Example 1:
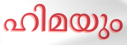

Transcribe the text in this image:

ഹിമയും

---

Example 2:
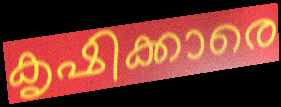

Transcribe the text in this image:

കൃഷിക്കാരെ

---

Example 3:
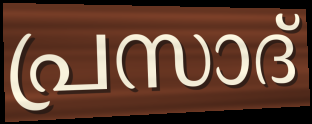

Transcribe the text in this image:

പ്രസാദ്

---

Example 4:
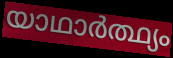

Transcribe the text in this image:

യാഥാർത്ഥ്യം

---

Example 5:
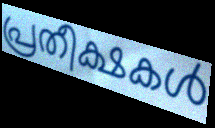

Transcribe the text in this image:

പ്രതീക്ഷകൾ